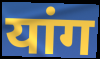
यांग